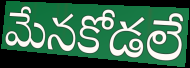
మేనకోడలే